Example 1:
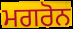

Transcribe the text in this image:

ਮਗਰੋਨ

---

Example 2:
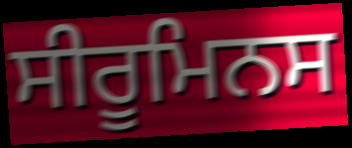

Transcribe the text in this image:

ਸੀਰੂਮਿਨਸ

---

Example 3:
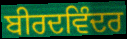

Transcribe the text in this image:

ਬੀਰਦਵਿੰਦਰ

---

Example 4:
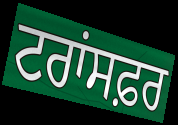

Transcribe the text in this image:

ਟਰਾਂਸਫ਼ਰ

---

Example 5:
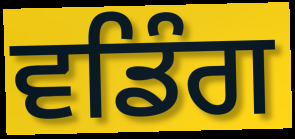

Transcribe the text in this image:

ਵਡਿੰਗ